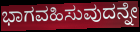
ಭಾಗವಹಿಸುವುದನ್ನೇ